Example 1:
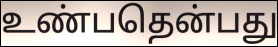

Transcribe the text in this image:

உண்பதென்பது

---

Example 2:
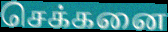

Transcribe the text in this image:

செக்கனை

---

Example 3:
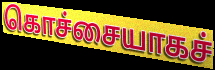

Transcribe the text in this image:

கொச்சையாகச்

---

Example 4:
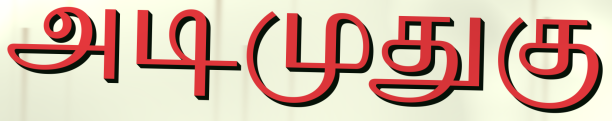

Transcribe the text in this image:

அடிமுதுகு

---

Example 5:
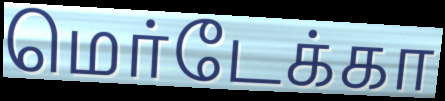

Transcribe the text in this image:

மெர்டேக்கா